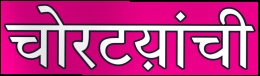
चोरटय़ांची